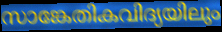
സാങ്കേതികവിദ്യയിലും